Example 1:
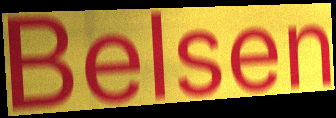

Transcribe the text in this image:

Belsen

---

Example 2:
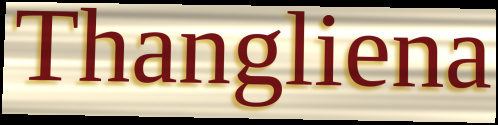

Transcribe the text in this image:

Thangliena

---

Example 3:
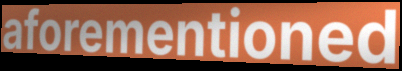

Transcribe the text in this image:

aforementioned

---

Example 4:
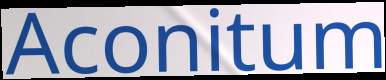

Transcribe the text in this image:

Aconitum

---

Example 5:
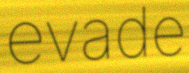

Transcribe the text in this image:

evade